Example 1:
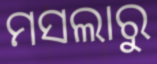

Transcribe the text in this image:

ମସଲାରୁ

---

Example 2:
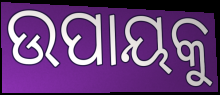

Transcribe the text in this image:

ଉପାୟକୁ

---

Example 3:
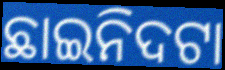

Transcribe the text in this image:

ଛାଇନିଦଟା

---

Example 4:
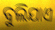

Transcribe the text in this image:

ବୁଲିଯାଏ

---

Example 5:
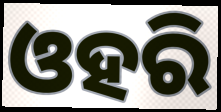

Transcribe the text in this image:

ଓହରି